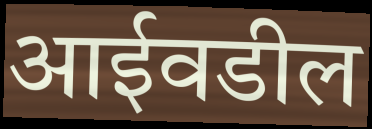
आईवडील